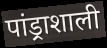
पांड्राशाली